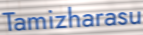
Tamizharasu